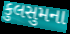
કુલસુમના